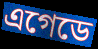
এগেডে